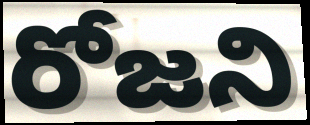
రోజని